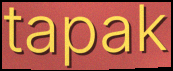
tapak